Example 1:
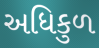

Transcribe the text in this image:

અધિકુળ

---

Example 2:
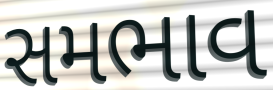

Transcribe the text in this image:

સમભાવ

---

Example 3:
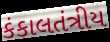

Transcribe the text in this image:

કંકાલતંત્રીય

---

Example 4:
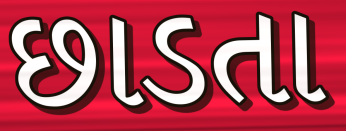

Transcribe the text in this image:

છાડતા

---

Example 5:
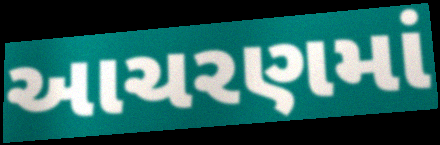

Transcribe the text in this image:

આચરણમાં